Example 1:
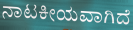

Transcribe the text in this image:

ನಾಟಕೀಯವಾಗಿದೆ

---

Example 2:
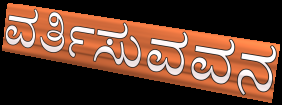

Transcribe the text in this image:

ವರ್ತಿಸುವವನ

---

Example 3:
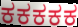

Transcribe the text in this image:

ಕಕಕಕಕ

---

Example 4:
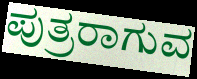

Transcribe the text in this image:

ಪುತ್ರರಾಗುವ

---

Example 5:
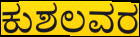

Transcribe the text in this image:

ಕುಶಲವರ